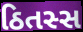
ઠિતસ્સ